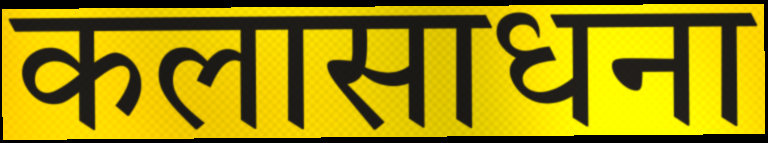
कलासाधना